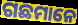
ଗଛମାନେ